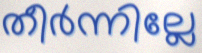
തീർന്നില്ലേ